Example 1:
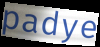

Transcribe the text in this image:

padye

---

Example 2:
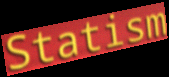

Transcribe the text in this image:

Statism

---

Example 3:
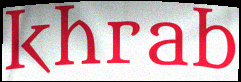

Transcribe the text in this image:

khrab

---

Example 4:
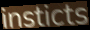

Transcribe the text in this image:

insticts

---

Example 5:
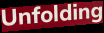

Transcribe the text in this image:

Unfolding